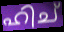
ഹിച്